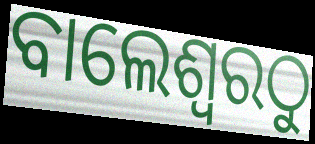
ବାଲେଶ୍ୱରଠୁ